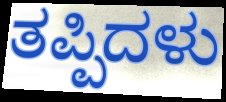
ತಪ್ಪಿದಳು